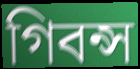
গিবন্স